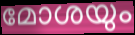
മോശയും